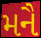
મનૈ